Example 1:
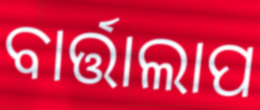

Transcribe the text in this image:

ବାର୍ତ୍ତାଲାପ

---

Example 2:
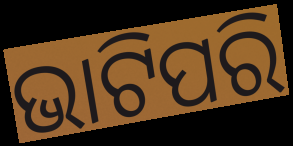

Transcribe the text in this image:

ଭାଟିପରି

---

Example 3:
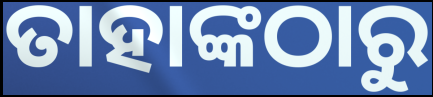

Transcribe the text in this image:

ତାହାଙ୍କଠାରୁ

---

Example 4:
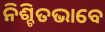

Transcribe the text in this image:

ନିଶ୍ଚିତଭାବେ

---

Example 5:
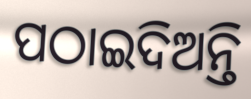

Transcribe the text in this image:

ପଠାଇଦିଅନ୍ତି